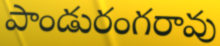
పాండురంగరావు